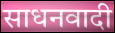
साधनवादी